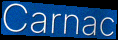
Carnac